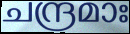
ചന്ദ്രമാഃ